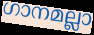
ഗാനമല്ലാ